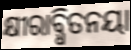
କ୍ଷୀରାବ୍ଧିତନୟା